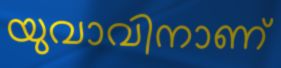
യുവാവിനാണ്